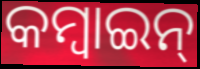
କମ୍ବାଇନ୍